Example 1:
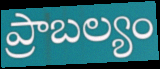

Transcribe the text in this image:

ప్రాబల్యం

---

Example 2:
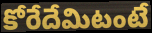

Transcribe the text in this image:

కోరేదేమిటంటే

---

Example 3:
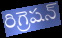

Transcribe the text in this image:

రిగ్రెషన్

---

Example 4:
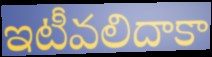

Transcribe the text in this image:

ఇటీవలిదాకా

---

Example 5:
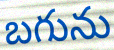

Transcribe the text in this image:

బగును